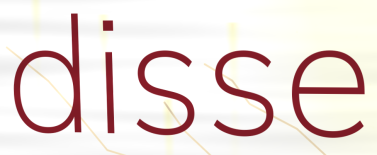
disse